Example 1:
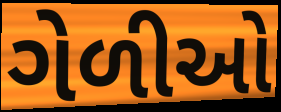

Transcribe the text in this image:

ગેળીઓ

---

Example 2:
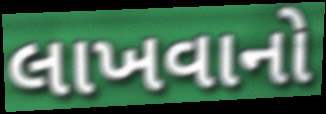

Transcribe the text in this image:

લાખવાનો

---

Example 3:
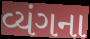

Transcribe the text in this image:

વ્યંગના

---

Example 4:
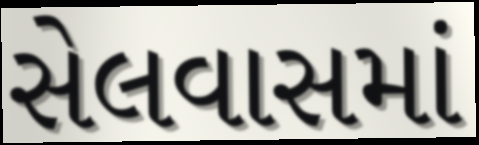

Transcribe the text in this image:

સેલવાસમાં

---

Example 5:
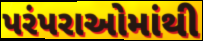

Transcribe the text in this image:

પરંપરાઓમાંથી